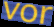
vor